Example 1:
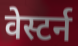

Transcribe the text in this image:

वेस्टर्न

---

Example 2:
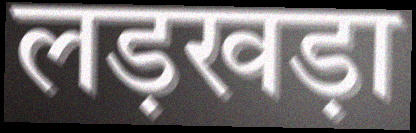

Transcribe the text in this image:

लड़खड़ा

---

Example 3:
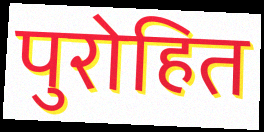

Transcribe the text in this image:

पुरोहित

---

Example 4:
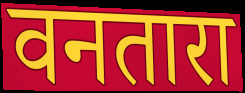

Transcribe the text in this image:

वनतारा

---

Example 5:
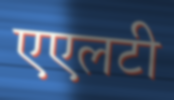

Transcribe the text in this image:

एएलटी